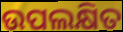
ଉପଲକ୍ଷିତ